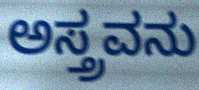
ಅಸ್ತ್ರವನು